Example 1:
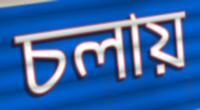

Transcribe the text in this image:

চলায়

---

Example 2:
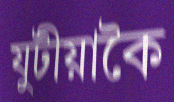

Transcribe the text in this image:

যুটীয়াকৈ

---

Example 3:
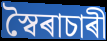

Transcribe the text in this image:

স্বৈৰাচাৰী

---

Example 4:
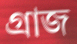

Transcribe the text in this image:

গ্ৰাজ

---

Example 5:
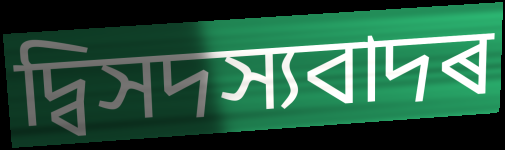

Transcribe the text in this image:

দ্বিসদস্যবাদৰ